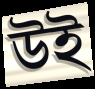
উই